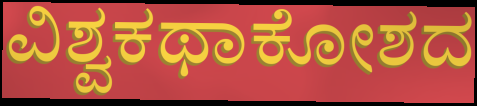
ವಿಶ್ವಕಥಾಕೋಶದ